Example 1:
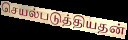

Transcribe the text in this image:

செயல்படுத்தியதன்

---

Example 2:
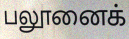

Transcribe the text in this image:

பலூனைக்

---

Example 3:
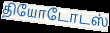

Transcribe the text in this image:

தியோடோடஸ்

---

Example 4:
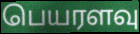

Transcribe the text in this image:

பெயரளவு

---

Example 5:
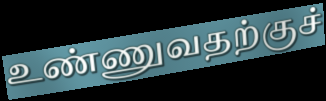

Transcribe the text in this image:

உண்ணுவதற்குச்